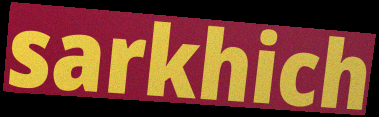
sarkhich